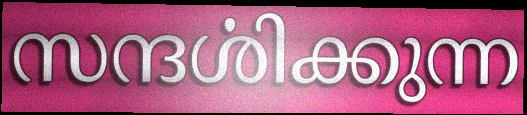
സന്ദൎശിക്കുന്ന